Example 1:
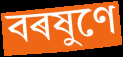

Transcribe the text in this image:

বৰষুণে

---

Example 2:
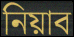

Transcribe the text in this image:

নিয়াব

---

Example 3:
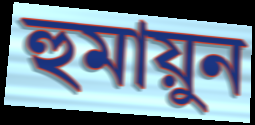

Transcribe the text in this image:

হুমায়ুন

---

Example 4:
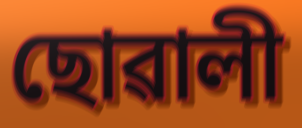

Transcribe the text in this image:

ছোৱালী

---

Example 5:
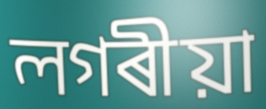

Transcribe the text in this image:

লগৰীয়া